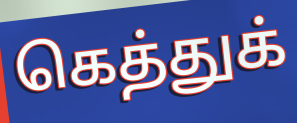
கெத்துக்